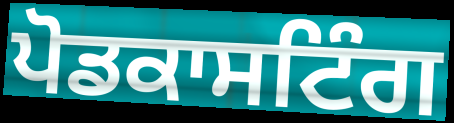
ਪੋਡਕਾਸਟਿੰਗ